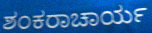
ಶಂಕರಾಚಾರ್ಯ